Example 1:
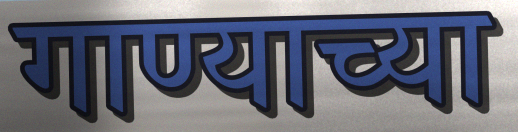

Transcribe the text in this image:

गाण्याच्या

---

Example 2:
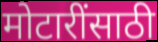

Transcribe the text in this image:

मोटारींसाठी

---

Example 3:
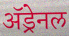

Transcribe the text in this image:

ॲड्रेनल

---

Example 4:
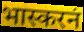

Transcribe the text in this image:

भास्करनं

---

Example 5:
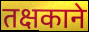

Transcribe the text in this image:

तक्षकाने